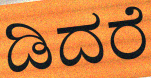
ಡಿದರೆ